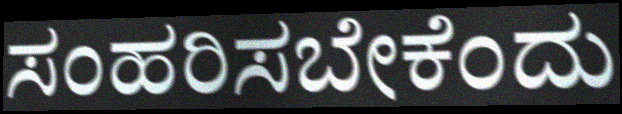
ಸಂಹರಿಸಬೇಕೆಂದು